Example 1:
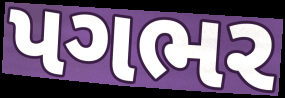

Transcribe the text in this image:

પગભર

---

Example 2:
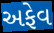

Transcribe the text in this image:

અફેવ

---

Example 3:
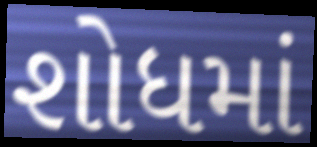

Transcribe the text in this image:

શોધમાં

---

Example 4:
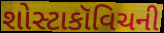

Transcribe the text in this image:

શોસ્ટાકૉવિચની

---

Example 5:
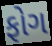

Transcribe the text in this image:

ફોગ